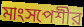
মাংসপেশীর